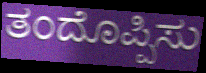
ತಂದೊಪ್ಪಿಸು